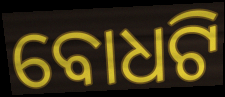
ବୋଧଟି